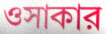
ওসাকার